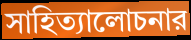
সাহিত্যালোচনার